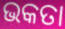
ଭକତା